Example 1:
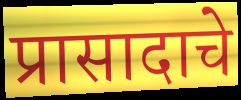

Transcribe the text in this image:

प्रासादाचे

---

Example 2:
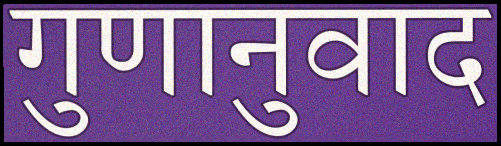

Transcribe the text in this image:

गुणानुवाद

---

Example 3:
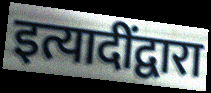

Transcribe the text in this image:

इत्यादींद्वारा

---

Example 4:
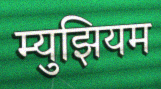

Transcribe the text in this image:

म्युझियम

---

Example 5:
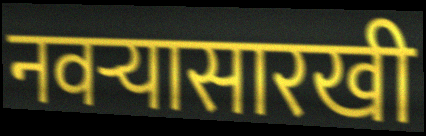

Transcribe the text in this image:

नवऱ्यासारखी